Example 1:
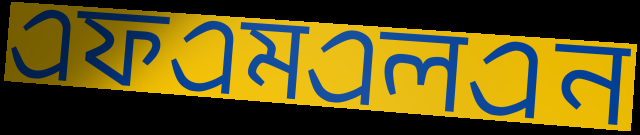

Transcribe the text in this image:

এফএমএলএন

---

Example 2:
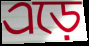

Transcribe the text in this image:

এড়ে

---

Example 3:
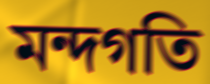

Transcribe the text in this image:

মন্দগতি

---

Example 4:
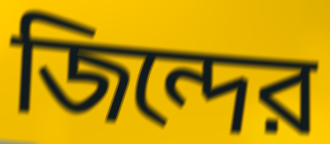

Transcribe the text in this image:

জিন্দের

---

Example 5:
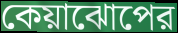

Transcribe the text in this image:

কেয়াঝোপের